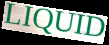
LIQUID